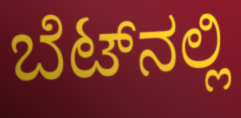
ಬೆಟ್‌ನಲ್ಲಿ